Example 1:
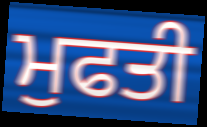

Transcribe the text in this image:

ਮੁਫਤੀ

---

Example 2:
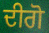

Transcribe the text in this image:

ਦੀਗੋ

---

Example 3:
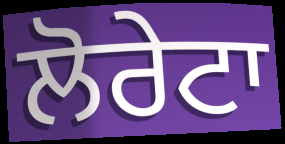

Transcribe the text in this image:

ਲੋਰੇਟਾ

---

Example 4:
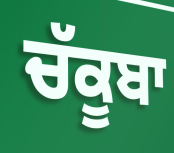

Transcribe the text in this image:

ਚੱਕੂਬਾ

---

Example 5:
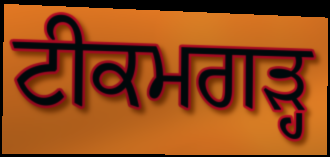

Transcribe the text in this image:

ਟੀਕਮਗੜ੍ਹ